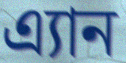
এ্যান